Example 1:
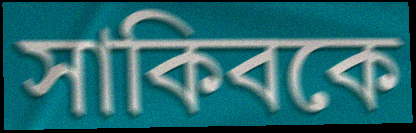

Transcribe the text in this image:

সাকিবকে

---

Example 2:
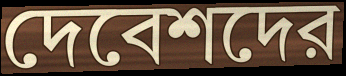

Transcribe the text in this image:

দেবেশদের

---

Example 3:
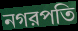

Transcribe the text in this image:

নগরপতি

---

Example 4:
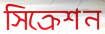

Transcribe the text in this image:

সিক্রেশন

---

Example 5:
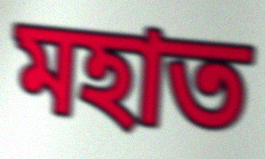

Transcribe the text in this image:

মহাত